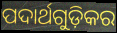
ପଦାର୍ଥଗୁଡ଼ିକର